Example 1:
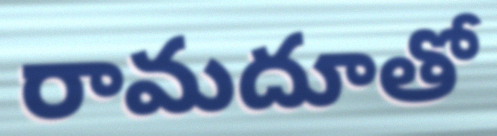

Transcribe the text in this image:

రామదూతో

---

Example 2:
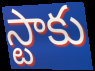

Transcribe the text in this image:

స్టాకు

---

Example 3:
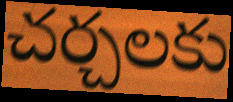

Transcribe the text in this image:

చర్చలకు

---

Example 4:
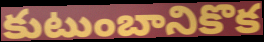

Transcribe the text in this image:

కుటుంబానికొక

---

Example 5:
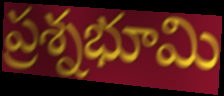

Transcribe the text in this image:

ప్రశ్నభూమి